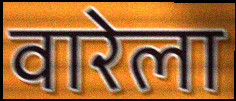
वारेला